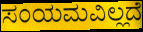
ಸಂಯಮವಿಲ್ಲದೆ